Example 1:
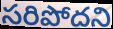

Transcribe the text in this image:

సరిపోదని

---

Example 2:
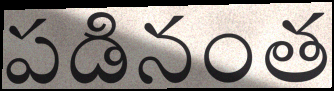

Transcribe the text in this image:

పడినంత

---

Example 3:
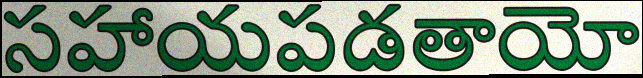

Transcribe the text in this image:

సహాయపడతాయో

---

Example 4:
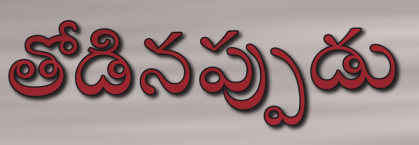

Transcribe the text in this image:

తోడినప్పుడు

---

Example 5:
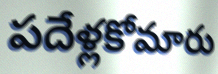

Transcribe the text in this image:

పదేళ్లకోమారు